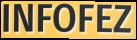
INFOFEZ